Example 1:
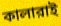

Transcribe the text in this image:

কালারাই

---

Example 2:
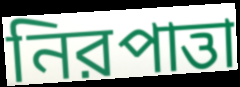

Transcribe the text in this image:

নিরপাত্তা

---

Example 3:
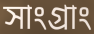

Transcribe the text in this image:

সাংগ্রাং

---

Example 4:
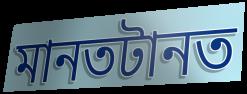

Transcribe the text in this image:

মানতটানত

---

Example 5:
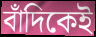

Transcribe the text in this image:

বাঁদিকেই